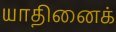
யாதினைக்